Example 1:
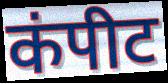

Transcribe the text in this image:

कंपीट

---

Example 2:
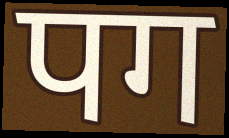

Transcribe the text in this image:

पग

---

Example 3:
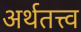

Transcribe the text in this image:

अर्थतत्त्व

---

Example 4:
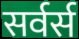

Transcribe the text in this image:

सर्वर्स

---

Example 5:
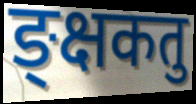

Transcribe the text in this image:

ङ्क्षकतु